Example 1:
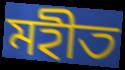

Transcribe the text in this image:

মহীত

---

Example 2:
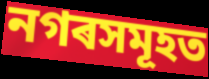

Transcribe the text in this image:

নগৰসমূহত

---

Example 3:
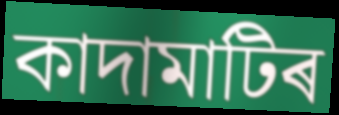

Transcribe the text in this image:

কাদামাটিৰ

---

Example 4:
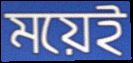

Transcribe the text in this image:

ময়েই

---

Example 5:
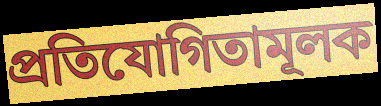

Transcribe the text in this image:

প্ৰতিযোগিতামূলক